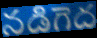
నడిగెద